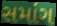
સમાંગ